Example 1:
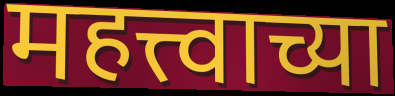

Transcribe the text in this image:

महत्त्वाच्या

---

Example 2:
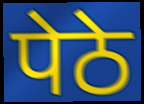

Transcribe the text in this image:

पेठे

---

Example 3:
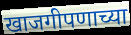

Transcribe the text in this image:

खाजगीपणाच्या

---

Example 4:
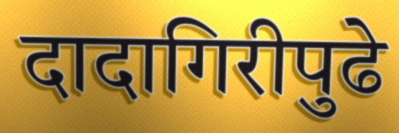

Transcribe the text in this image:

दादागिरीपुढे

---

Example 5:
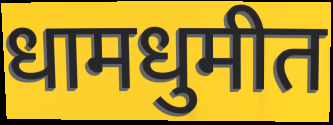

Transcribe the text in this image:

धामधुमीत